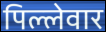
पिल्लेवार